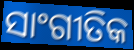
ସାଂଗୀତିକ